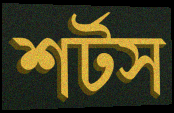
শর্টস